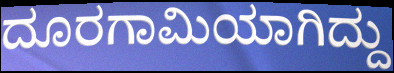
ದೂರಗಾಮಿಯಾಗಿದ್ದು